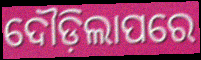
ଦୌଡ଼ିଲାପରେ